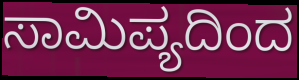
ಸಾಮಿಪ್ಯದಿಂದ